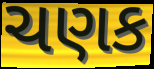
ચણક